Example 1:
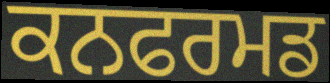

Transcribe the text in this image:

ਕਨਫਰਮਡ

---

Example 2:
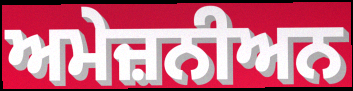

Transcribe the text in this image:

ਅਮੇਜ਼ਨੀਅਨ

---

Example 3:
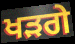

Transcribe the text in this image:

ਖੜਗੇ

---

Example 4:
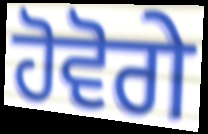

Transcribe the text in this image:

ਹੋਵੋਗੇ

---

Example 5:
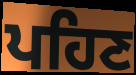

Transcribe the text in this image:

ਪਹਿਣ